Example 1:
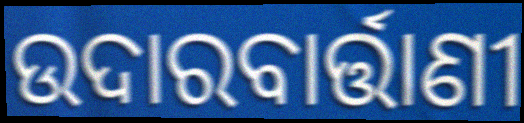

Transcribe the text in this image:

ଉଦାରବାର୍ତ୍ତାଣୀ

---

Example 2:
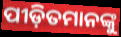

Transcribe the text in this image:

ପୀଡ଼ିତମାନଙ୍କୁ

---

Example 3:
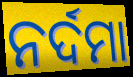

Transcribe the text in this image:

ନର୍ଦମା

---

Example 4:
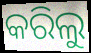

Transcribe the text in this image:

କରିଲୁ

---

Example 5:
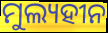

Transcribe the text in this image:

ମୁଲ୍ୟହୀନ